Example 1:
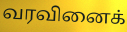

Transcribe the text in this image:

வரவினைக்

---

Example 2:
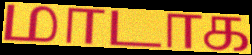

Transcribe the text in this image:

மாடாக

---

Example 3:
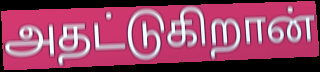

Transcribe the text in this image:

அதட்டுகிறான்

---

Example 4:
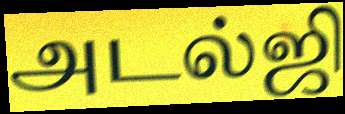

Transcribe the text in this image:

அடல்ஜி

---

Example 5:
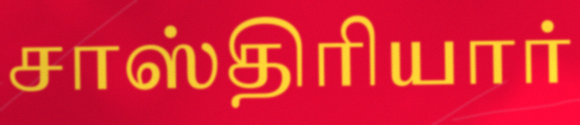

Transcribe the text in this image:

சாஸ்திரியார்